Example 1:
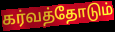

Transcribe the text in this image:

கர்வத்தோடும்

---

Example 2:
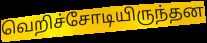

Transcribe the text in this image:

வெறிச்சோடியிருந்தன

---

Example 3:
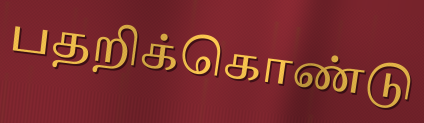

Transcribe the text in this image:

பதறிக்கொண்டு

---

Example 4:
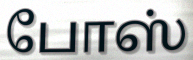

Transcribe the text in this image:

போஸ்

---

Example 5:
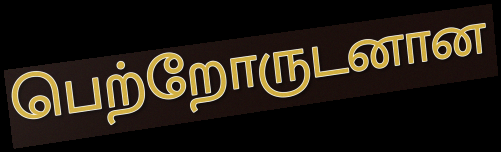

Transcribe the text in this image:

பெற்றோருடனான